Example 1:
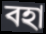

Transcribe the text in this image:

বহা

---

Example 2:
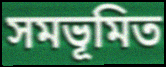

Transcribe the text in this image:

সমভূমিত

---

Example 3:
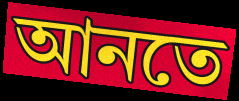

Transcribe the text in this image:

আনতে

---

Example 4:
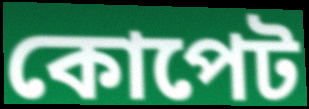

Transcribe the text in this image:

কোপেট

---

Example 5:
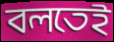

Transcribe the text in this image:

বলতেই